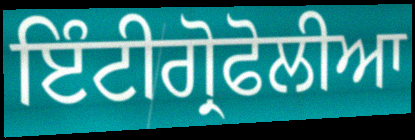
ਇੰਟੀਗ੍ਰੋਫੋਲੀਆ